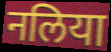
नलिया